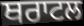
ਥਰਾਟਲ